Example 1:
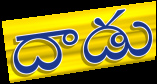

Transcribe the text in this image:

దాడు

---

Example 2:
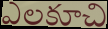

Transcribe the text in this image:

ఎలకూచి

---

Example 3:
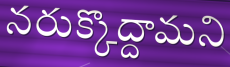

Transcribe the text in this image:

నరుక్కొద్దామని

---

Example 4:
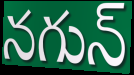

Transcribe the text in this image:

నగున్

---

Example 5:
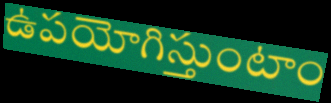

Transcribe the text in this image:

ఉపయోగిస్తుంటాం